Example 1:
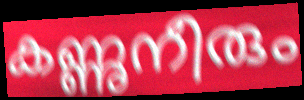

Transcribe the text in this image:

കണ്ണുനീരും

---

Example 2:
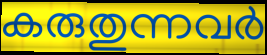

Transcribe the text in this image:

കരുതുന്നവർ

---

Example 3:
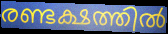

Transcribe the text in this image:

രണ്ടക്ഷത്തിൽ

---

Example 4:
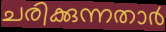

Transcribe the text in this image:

ചരിക്കുന്നതാർ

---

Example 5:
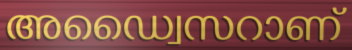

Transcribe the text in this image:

അഡ്വൈസറാണ്